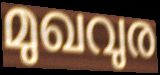
മുഖവുര